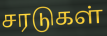
சரடுகள்